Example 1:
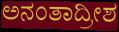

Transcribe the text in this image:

ಅನಂತಾದ್ರೀಶ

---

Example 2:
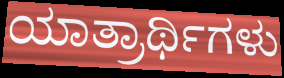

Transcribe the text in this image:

ಯಾತ್ರಾರ್ಥಿಗಳು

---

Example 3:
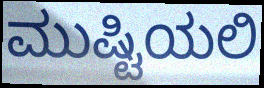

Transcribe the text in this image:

ಮುಷ್ಟಿಯಲಿ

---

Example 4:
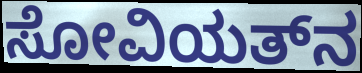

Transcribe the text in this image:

ಸೋವಿಯತ್‌ನ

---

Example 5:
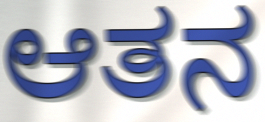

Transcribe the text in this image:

ಆತನ